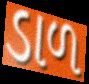
ડાળ